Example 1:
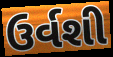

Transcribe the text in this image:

ઉર્વશી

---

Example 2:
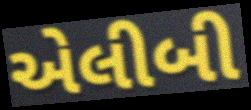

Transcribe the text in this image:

એલીબી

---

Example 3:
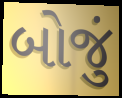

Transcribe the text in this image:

બોજું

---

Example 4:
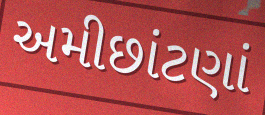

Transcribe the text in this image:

અમીછાંટણાં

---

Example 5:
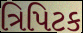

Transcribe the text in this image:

ત્રિપિટક